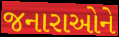
જનારાઓને